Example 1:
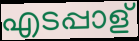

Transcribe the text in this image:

എടപ്പാള്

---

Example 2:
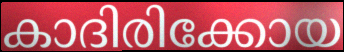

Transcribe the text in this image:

കാദിരിക്കോയ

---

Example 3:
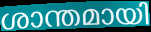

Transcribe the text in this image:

ശാന്തമായി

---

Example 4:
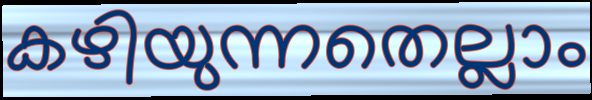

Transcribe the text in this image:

കഴിയുന്നതെല്ലാം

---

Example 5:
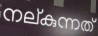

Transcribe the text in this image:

നല്കുന്നത്